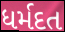
ધર્મદત